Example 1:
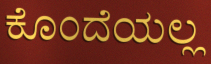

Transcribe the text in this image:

ಕೊಂದೆಯಲ್ಲ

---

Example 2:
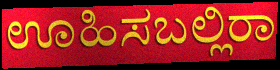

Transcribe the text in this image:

ಊಹಿಸಬಲ್ಲಿರಾ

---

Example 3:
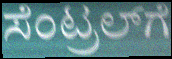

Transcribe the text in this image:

ಸೆಂಟ್ರಲ್‌ಗೆ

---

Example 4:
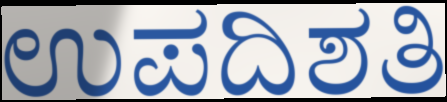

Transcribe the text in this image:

ಉಪದಿಶತಿ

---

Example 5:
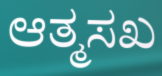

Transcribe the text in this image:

ಆತ್ಮಸಖ